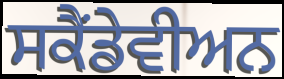
ਸਕੈਂਡੇਵੀਅਨ